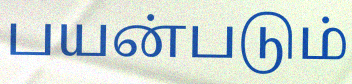
பயன்படும்